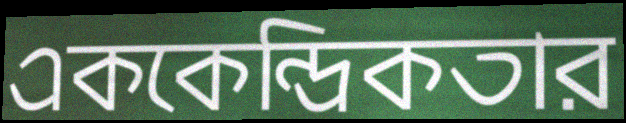
এককেন্দ্রিকতার